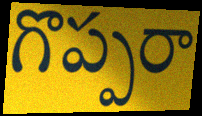
గొప్పరా